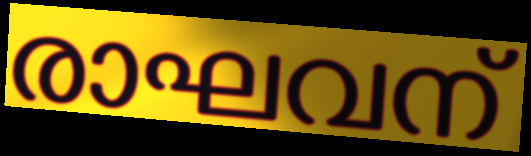
രാഘവന്